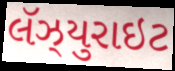
લૅઝ્યુરાઇટ